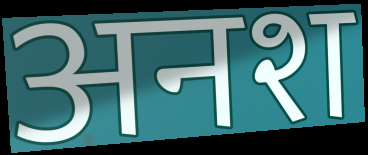
अनश